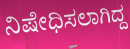
ನಿಷೇಧಿಸಲಾಗಿದ್ದ